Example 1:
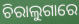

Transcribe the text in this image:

ଚିରାଲୁଗାରେ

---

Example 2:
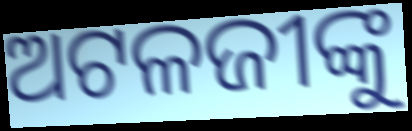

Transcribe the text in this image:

ଅଟଳଜୀଙ୍କୁ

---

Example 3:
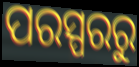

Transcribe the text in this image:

ପରସ୍ପରରୁ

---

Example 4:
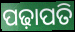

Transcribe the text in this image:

ପଢ଼ାପତି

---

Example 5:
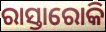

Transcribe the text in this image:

ରାସ୍ତାରୋକି